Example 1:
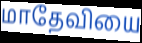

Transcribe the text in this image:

மாதேவியை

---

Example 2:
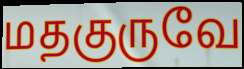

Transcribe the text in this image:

மதகுருவே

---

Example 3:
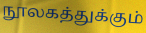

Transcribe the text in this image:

நூலகத்துக்கும்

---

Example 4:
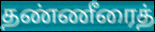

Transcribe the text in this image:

தண்ணீரைத்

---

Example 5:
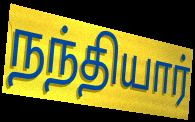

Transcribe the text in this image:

நந்தியார்